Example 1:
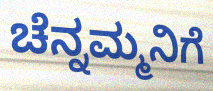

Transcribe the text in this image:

ಚೆನ್ನಮ್ಮನಿಗೆ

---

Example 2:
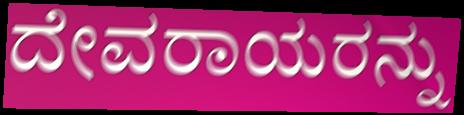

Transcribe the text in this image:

ದೇವರಾಯರನ್ನು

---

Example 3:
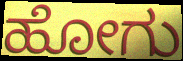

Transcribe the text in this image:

ಹೋಗು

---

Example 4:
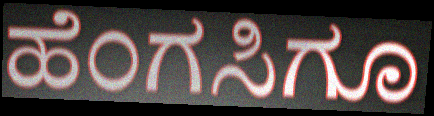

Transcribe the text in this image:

ಹೆಂಗಸಿಗೂ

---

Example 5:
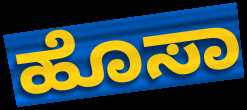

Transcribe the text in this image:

ಹೊಸಾ